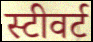
स्टीवर्ट